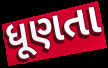
ધૂણતા